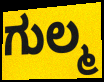
ಗುಲ್ಮ